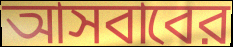
আসবাবের